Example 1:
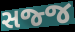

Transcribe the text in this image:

સજ્જ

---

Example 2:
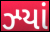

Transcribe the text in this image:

ઝ્યાં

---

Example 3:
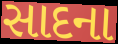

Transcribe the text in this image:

સાદના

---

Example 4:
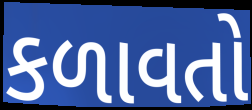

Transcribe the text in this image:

કળાવતો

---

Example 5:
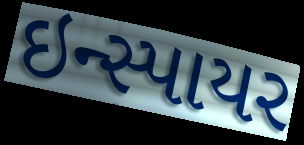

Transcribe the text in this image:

ઇન્સ્પાયર